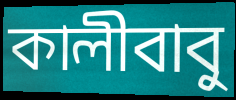
কালীবাবু